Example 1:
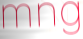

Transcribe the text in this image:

mng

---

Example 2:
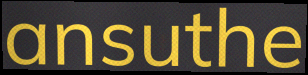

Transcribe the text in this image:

ansuthe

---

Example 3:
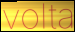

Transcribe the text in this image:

volta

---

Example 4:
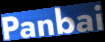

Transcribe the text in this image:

Panbai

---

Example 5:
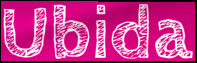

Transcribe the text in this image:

Ubida